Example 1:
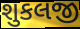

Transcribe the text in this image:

શુકલજી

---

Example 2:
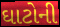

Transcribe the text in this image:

ઘાટોની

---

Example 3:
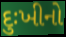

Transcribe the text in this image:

દુઃખીનો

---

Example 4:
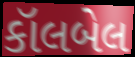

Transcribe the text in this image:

કૉલબેલ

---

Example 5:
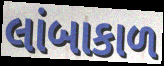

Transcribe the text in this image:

લાંબાકાળ